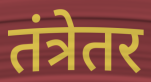
तंत्रेतर